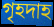
গৃহদাহ